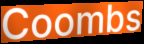
Coombs